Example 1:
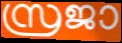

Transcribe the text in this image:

സ്രജാ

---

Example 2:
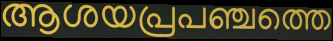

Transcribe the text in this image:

ആശയപ്രപഞ്ചത്തെ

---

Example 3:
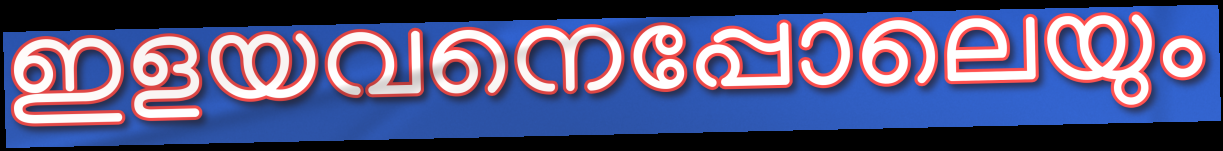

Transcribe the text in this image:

ഇളയവനെപ്പോലെയും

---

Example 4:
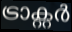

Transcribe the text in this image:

ട്രാക്റ്റർ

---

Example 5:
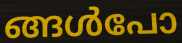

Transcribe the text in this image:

ങ്ങൾപോ